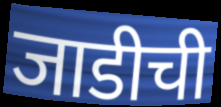
जाडीची